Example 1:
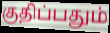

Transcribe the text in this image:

குதிப்பதும்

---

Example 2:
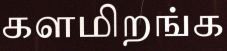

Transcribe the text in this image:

களமிறங்க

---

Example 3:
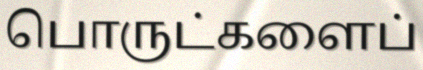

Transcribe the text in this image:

பொருட்களைப்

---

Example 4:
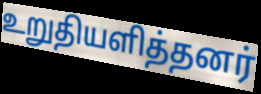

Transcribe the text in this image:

உறுதியளித்தனர்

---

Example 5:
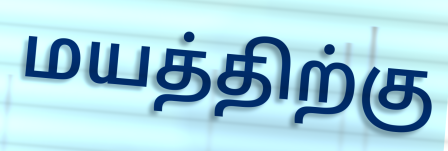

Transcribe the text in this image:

மயத்திற்கு